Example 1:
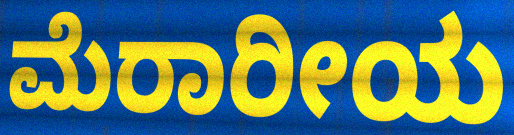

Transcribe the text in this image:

ಮೆರಾರೀಯ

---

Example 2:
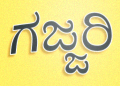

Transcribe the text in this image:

ಗಜ್ಜರಿ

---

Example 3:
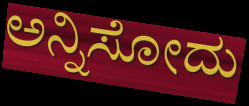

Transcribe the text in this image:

ಅನ್ನಿಸೋದು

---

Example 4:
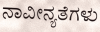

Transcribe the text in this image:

ನಾವೀನ್ಯತೆಗಳು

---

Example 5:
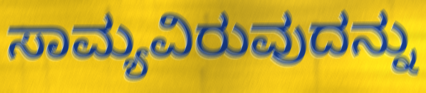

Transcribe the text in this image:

ಸಾಮ್ಯವಿರುವುದನ್ನು